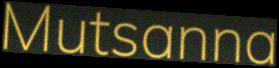
Mutsanna